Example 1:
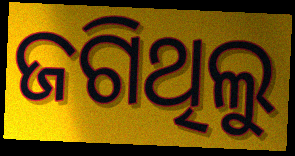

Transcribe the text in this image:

ଜଗିଥିଲୁ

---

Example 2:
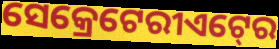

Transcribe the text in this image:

ସେକ୍ରେଟେରୀଏଟ୍‍ରେ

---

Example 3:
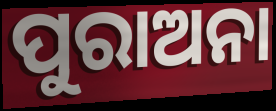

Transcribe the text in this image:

ପୁରାଅନା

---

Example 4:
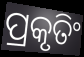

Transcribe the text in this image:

ପ୍ରକୃତିଂ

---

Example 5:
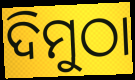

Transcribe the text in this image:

ଦିମୁଠା